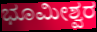
ಭೂಮೀಶ್ವರ